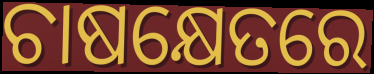
ଚାଷକ୍ଷେତରେ